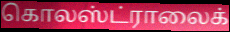
கொலஸ்ட்ராலைக்